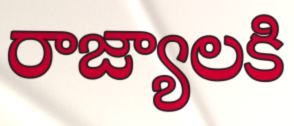
రాజ్యాలకి